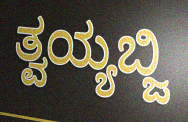
ತ್ವಯ್ಯಬ್ಜಿ